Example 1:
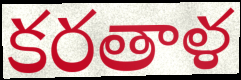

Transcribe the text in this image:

కరతాళ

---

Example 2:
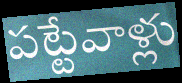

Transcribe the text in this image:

పట్టేవాళ్లు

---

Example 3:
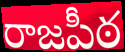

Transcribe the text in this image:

రాజపీఠ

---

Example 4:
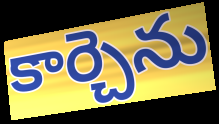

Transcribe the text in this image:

కార్చెను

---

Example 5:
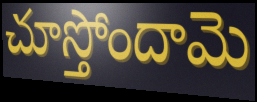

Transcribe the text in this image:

చూస్తోందామె